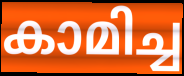
കാമിച്ച